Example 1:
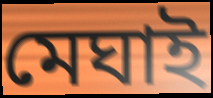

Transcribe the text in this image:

মেঘাই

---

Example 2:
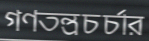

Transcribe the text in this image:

গণতন্ত্রচর্চার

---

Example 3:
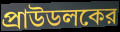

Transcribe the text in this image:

প্রাউডলকের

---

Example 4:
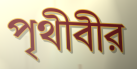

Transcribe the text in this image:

পৃথীবীর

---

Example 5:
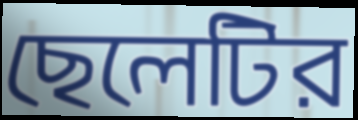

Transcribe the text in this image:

ছেলেটির